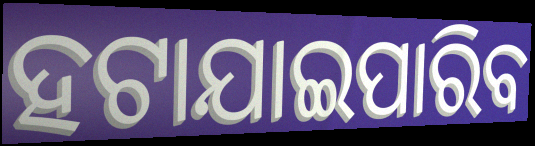
ହଟାଯାଇପାରିବ